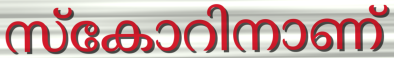
സ്കോറിനാണ്